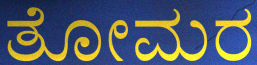
ತೋಮರ